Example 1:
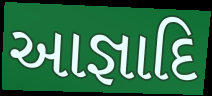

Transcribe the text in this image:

આજ્ઞાદિ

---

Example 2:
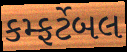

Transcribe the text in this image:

કમ્ફર્ટેબલ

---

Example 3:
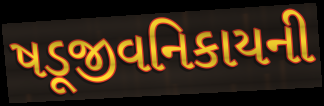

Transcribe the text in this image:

ષડૂજીવનિકાયની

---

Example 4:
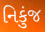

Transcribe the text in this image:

નિકુંજ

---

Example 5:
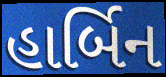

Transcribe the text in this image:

હાર્બિન